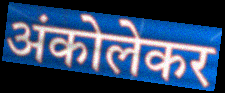
अंकोलेकर